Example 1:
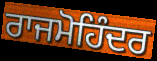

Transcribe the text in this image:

ਰਾਜਮੋਹਿੰਦਰ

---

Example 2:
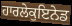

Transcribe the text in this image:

ਹਾਰਲੇਕੁਇਨੇਡ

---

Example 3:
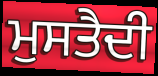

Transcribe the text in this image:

ਮੁਸਤੈਦੀ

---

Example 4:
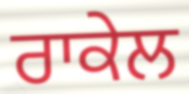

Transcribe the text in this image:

ਰਾਕੇਲ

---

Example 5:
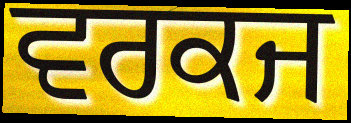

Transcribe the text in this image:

ਵਰਕਜ